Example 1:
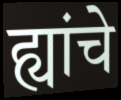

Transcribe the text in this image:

ह्यांचे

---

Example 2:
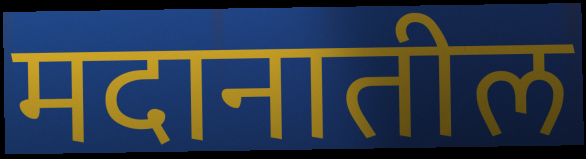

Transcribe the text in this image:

मदानातील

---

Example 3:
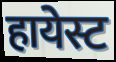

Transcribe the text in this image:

हायेस्ट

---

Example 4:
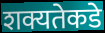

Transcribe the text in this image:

शक्यतेकडे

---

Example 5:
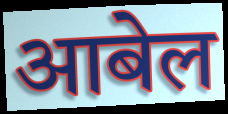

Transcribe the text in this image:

आबेल